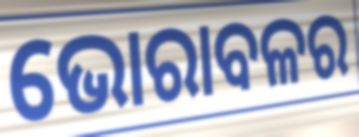
ଭୋରାବଳର